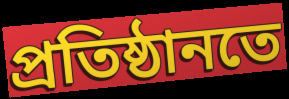
প্ৰতিষ্ঠানতে